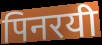
पिनरयी